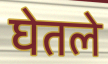
घेतले